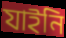
যাইনি